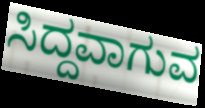
ಸಿದ್ದವಾಗುವ